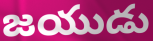
జయుడు